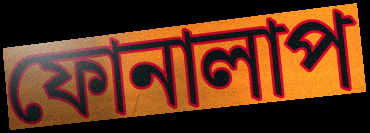
ফোনালাপ